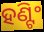
ହଣ୍ଟିଂ